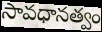
సావధానత్వం